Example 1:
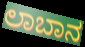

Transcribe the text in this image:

ಲಾಬಾನ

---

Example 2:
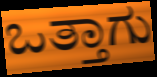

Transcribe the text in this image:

ಒತ್ತಾಗು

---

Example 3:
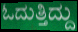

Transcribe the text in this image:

ಓದುತ್ತಿದ್ದು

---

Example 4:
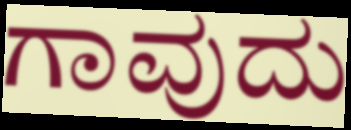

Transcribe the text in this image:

ಗಾವುದು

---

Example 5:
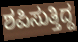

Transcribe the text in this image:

ಶಪಿಸುತ್ತಿದ್ದ